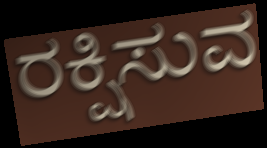
ರಕ್ಷಿಸುವ